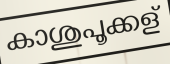
കാശുപൂക്കള്